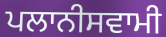
ਪਲਾਨੀਸਵਾਮੀ